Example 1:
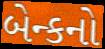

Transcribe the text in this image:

બેન્કનો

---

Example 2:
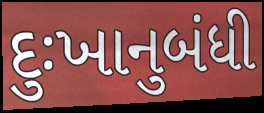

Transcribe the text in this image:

દુઃખાનુબંધી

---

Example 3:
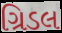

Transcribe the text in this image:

ગ્રિડલ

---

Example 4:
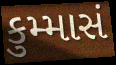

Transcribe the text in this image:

કુમ્માસં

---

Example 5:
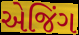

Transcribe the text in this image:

એજિંગ